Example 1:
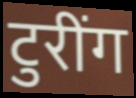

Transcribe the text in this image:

टुरींग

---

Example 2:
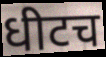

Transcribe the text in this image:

धीटच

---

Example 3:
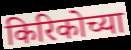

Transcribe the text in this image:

किरिकोच्या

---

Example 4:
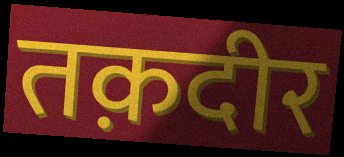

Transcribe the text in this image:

तक़दीर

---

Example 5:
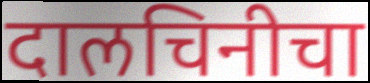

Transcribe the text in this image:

दालचिनीचा